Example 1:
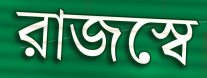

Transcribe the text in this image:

রাজস্বে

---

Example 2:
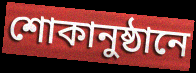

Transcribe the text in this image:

শোকানুষ্ঠানে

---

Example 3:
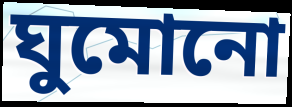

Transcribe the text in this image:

ঘুমোনো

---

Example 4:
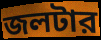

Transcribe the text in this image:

জলটার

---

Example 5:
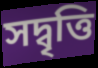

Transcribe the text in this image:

সদ্বৃত্তি